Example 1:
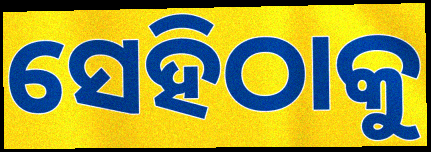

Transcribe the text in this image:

ସେହିଠାକୁ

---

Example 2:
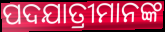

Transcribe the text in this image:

ପଦଯାତ୍ରୀମାନଙ୍କ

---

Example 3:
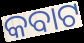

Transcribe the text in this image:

କବାଟ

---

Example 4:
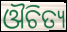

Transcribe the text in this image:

ଔଚିତ୍ଯ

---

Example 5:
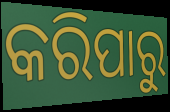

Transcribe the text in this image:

କରିପାରୁ